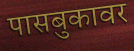
पासबुकावर